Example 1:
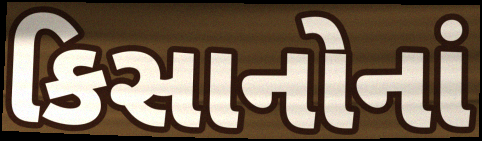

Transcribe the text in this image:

કિસાનોનાં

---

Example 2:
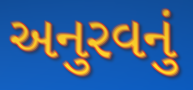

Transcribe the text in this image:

અનુરવનું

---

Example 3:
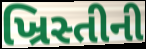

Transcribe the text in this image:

ખ્રિસ્તીની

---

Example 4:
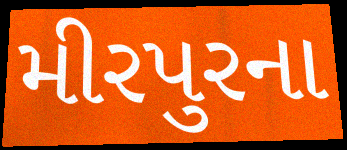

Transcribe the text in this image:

મીરપુરના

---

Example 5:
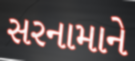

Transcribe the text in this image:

સરનામાને